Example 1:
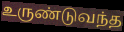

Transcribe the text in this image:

உருண்டுவந்த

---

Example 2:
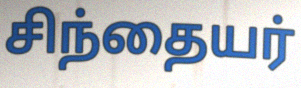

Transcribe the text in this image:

சிந்தையர்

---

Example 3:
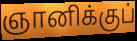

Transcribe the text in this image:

ஞானிக்குப்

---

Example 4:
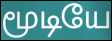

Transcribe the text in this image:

மூடியே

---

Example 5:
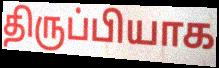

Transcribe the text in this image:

திருப்பியாக